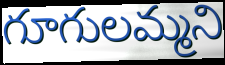
గూగులమ్మని